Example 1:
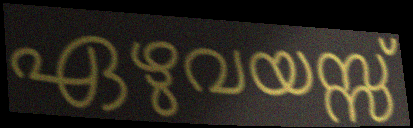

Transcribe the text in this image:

ഏഴുവയസ്സ്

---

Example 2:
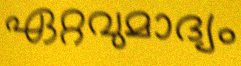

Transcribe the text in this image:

ഏറ്റവുമാദ്യം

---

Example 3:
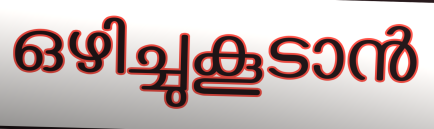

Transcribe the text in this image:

ഒഴിച്ചുകൂടാൻ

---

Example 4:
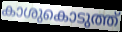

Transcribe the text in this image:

കാശുകൊടുത്ത്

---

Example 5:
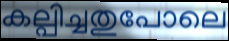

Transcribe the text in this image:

കല്പിച്ചതുപോലെ